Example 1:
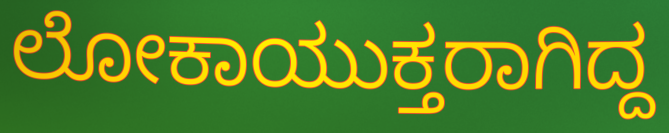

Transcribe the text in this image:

ಲೋಕಾಯುಕ್ತರಾಗಿದ್ದ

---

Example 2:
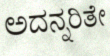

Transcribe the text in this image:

ಅದನ್ನರಿತೇ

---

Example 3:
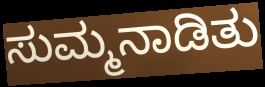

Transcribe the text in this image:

ಸುಮ್ಮನಾಡಿತು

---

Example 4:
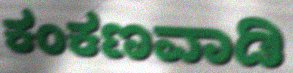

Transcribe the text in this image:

ಕಂಕಣವಾಡಿ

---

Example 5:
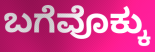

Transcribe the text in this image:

ಬಗೆವೊಕ್ಕು